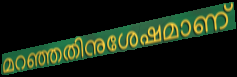
മറഞ്ഞതിനുശേഷമാണ്